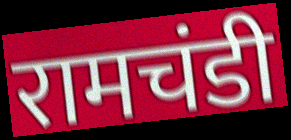
रामचंडी